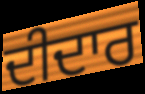
ਦੀਦਾਰ